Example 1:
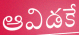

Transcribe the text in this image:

ఆవిడకే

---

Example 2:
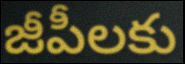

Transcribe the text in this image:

జీపీలకు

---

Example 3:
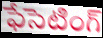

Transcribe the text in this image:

ఫేసెటింగ్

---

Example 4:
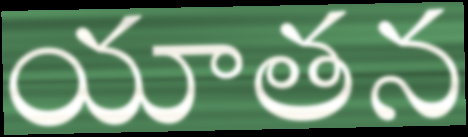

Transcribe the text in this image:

యాతన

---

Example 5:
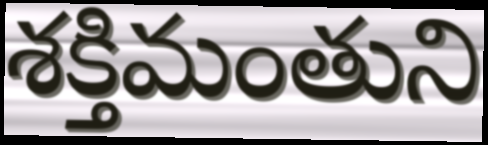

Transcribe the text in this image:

శక్తిమంతుని